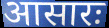
आसारः